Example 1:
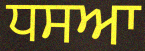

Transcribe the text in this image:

ਧਸਆ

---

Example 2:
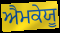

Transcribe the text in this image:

ਐਮਕੇਯੂ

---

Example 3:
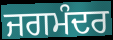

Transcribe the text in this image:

ਜਗਮੰਦਰ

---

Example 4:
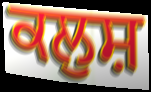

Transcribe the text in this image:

ਕਲੁਸ਼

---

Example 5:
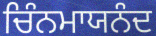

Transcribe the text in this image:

ਚਿੰਨਮਾਯਨੰਦ